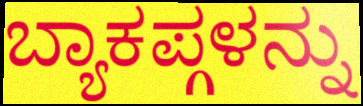
ಬ್ಯಾಕಪ್ಗಳನ್ನು